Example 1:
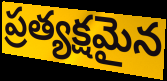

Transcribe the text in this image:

ప్రత్యక్షమైన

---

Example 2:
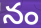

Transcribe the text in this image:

నం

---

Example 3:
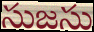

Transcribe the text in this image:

సుజసు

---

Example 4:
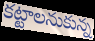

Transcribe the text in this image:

కట్టాలనుకున్న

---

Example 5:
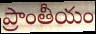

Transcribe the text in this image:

ప్రాంతీయం